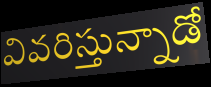
వివరిస్తున్నాడో